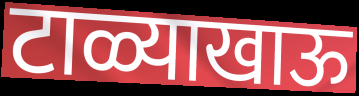
टाळ्याखाऊ